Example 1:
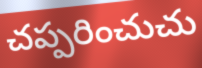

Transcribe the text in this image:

చప్పరించుచు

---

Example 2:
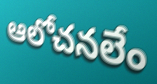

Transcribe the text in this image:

ఆలోచనలేం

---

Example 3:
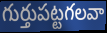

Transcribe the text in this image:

గుర్తుపట్టగలవా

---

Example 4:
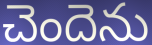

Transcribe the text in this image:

చెందెను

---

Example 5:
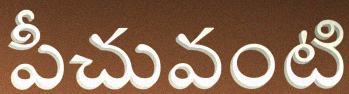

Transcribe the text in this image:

పీచువంటి